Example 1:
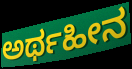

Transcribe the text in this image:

ಅರ್ಥಹೀನ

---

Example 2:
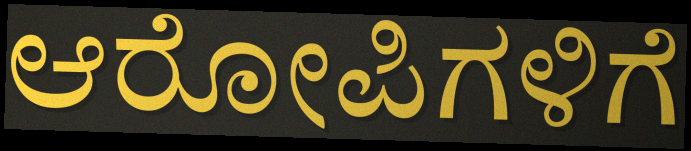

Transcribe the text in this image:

ಆರೋಪಿಗಳಿಗೆ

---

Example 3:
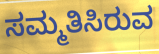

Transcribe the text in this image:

ಸಮ್ಮತಿಸಿರುವ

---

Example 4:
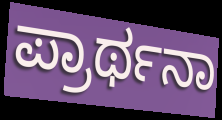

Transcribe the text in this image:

ಪ್ರಾರ್ಥನಾ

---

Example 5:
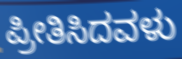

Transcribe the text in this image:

ಪ್ರೀತಿಸಿದವಳು